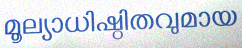
മൂല്യാധിഷ്ഠിതവുമായ